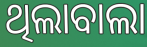
ଥିଲାବାଲା